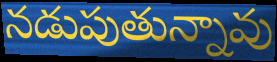
నడుపుతున్నావు